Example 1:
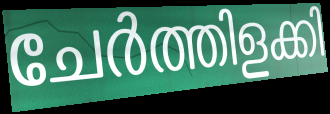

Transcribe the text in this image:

ചേർത്തിളക്കി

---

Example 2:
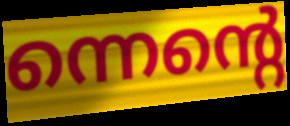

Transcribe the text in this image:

ന്നെന്റെ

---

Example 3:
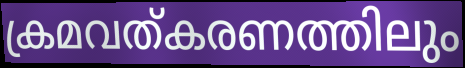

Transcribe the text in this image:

ക്രമവത്കരണത്തിലും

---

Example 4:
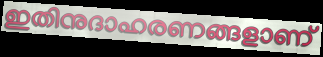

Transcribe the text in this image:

ഇതിനുദാഹരണങ്ങളാണ്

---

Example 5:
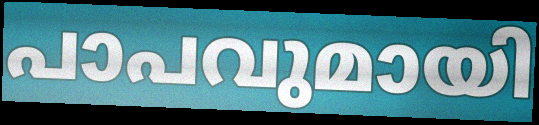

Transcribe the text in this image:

പാപവുമായി